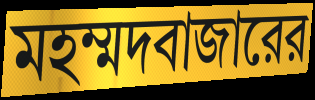
মহম্মদবাজারের